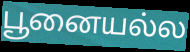
பூனையல்ல